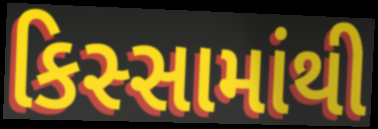
કિસ્સામાંથી